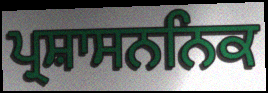
ਪ੍ਰਸ਼ਾਸਨਨਿਕ